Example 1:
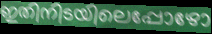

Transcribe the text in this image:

ഇതിനിടയിലെപ്പോഴോ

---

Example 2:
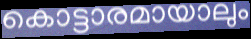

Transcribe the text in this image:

കൊട്ടാരമായാലും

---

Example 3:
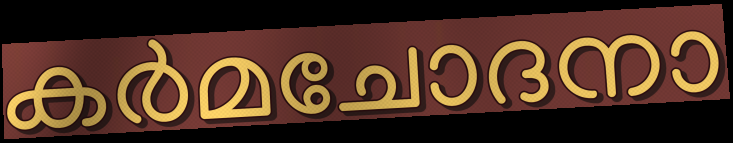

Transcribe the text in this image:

കർമചോദനാ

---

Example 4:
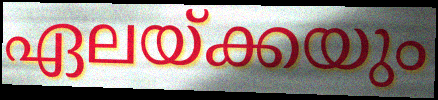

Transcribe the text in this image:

ഏലയ്ക്കയും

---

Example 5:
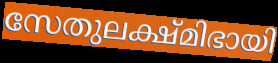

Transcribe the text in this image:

സേതുലക്ഷ്മിഭായി